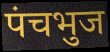
पंचभुज